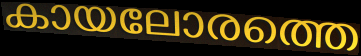
കായലോരത്തെ